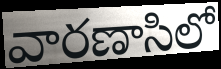
వారణాసిలో